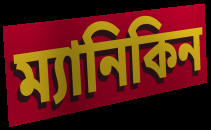
ম্যানিকিন